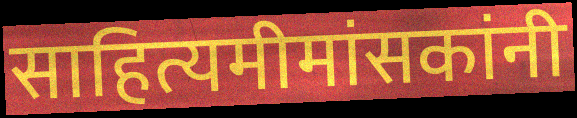
साहित्यमीमांसकांनी